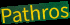
Pathros